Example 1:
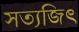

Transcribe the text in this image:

সত্যজিৎ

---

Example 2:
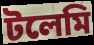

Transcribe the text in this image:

টলেমি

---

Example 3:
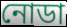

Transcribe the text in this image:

নোডা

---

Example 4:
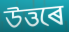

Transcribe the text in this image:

উত্তৰে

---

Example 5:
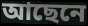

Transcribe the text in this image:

আছেনে